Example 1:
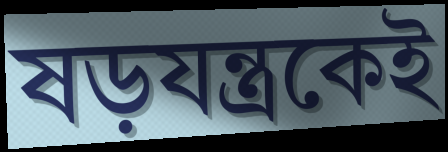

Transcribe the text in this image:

ষড়যন্ত্রকেই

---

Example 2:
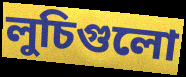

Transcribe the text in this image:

লুচিগুলো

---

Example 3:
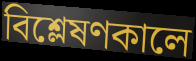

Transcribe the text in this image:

বিশ্লেষণকালে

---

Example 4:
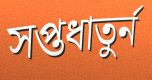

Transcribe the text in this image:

সপ্তধাতুর্ন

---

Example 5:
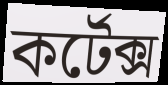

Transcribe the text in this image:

কর্টেক্স